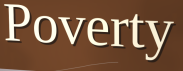
Poverty